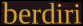
berdiri